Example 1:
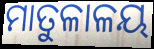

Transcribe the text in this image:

ମାତୁଳାଳୟ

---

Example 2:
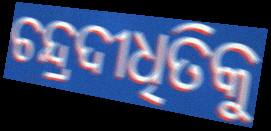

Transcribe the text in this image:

ଚନ୍ଦ୍ରଦୀଧିତିକୁ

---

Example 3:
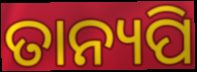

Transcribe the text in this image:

ତାନ୍ୟପି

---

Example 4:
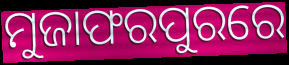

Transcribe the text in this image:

ମୁଜାଫରପୁରରେ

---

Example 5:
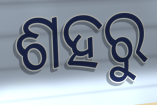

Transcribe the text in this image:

ଶହରୁ